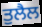
ਤੁਲੈਲ